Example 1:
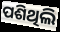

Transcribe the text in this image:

ପଶିଥିଲି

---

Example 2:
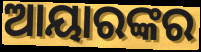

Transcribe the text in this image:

ଆୟାରଙ୍କର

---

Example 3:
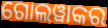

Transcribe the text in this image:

ଗୋଲୱାକର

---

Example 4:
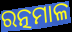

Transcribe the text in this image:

ରତ୍ନମାଳ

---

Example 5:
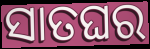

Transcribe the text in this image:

ସାତଘର